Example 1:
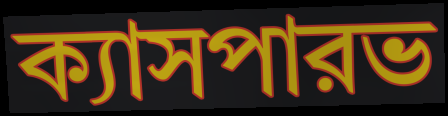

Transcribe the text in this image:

ক্যাসপারভ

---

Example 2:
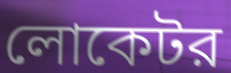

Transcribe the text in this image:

লোকেটর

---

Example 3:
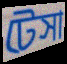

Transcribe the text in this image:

টেসা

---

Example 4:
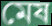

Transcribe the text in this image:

মেষ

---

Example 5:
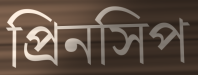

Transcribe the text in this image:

প্রিনসিপ